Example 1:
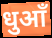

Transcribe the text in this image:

धुआँ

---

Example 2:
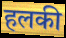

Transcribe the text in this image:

हलकी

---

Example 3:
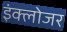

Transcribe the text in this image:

इंक्लोजर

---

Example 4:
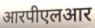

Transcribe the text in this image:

आरपीएलआर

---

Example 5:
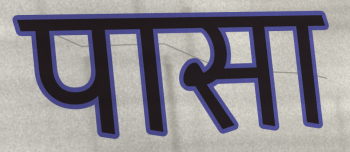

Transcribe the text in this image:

पासा